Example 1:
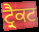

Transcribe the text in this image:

ਟ੍ਰੈਕਟ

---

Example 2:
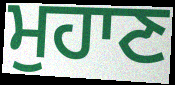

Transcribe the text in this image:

ਮੁਹਾਣ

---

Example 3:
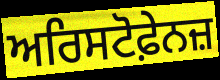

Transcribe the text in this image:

ਅਰਿਸਟੋਫ਼ੇਨਜ਼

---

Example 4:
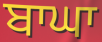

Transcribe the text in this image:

ਬਾਘਾ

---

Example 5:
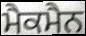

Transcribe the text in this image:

ਮੈਕਮੈਨ